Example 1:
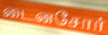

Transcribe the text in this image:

டைனசோர்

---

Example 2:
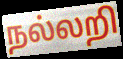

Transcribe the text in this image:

நல்லறி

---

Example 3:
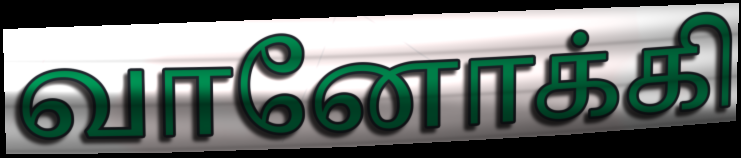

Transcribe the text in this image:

வானோக்கி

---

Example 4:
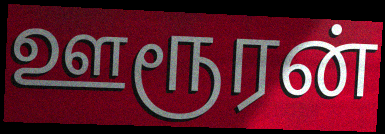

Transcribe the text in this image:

ஊரூரன்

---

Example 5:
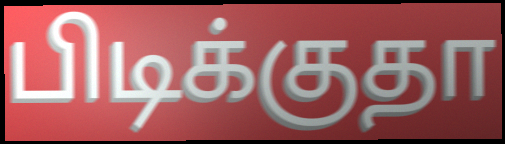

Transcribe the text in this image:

பிடிக்குதா